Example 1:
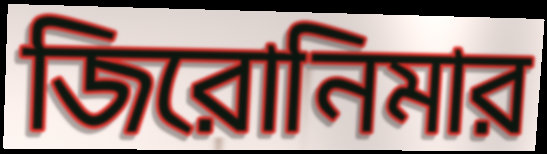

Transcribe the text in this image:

জিরোনিমার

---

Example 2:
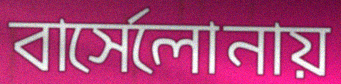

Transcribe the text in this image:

বার্সেলোনায়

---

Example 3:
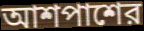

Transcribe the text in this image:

আশপাশের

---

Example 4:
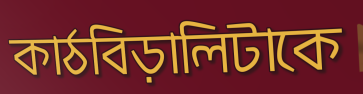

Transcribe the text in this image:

কাঠবিড়ালিটাকে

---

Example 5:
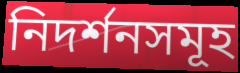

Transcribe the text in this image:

নিদর্শনসমূহ